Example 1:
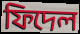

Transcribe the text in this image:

ফিদেল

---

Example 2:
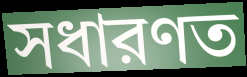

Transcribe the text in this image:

সধারণত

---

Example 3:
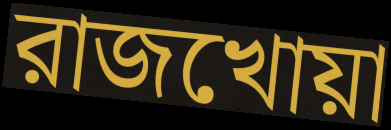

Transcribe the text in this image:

রাজখোয়া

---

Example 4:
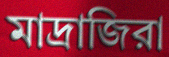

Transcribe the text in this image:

মাদ্রাজিরা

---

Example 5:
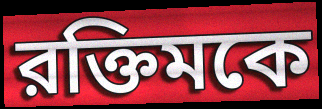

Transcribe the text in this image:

রক্তিমকে